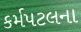
કર્મપટલના